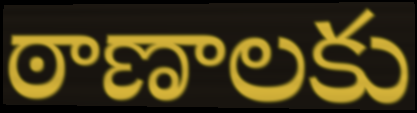
ఠాణాలకు